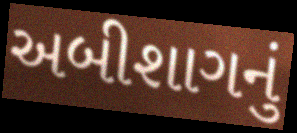
અબીશાગનું